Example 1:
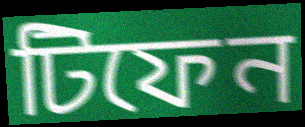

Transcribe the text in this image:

টিফেন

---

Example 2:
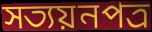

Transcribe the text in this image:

সত্যয়নপত্র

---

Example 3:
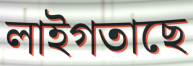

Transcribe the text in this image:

লাইগতাছে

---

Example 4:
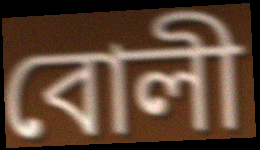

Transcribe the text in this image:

বোলী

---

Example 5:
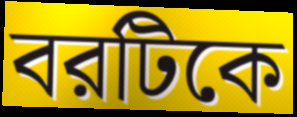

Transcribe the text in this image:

বরটিকে